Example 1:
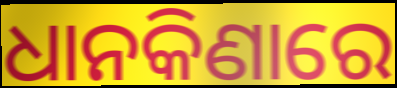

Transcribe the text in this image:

ଧାନକିଣାରେ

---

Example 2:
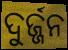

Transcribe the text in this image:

ଦୁର୍ଜ୍ଜନ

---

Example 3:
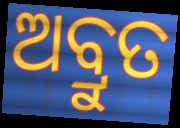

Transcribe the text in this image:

ଅବ୍ରୁତ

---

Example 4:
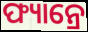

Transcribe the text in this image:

ଫ୍ୟାନ୍ରେ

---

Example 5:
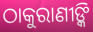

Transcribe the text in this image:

ଠାକୁରାଣୀଙ୍କି